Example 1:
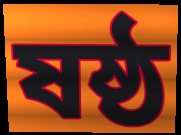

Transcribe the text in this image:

ষষ্ঠ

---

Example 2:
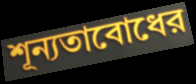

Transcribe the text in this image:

শূন্যতাবোধের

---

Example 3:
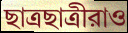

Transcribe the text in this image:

ছাত্রছাত্রীরাও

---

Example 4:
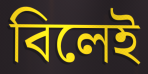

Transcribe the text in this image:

বিলেই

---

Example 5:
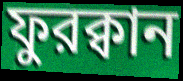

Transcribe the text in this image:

ফুরক্বান